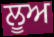
ਲੂਅ